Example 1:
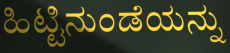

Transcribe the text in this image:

ಹಿಟ್ಟಿನುಂಡೆಯನ್ನು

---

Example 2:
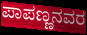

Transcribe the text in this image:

ಪಾಪಣ್ಣನವರ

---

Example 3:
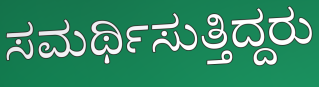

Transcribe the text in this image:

ಸಮರ್ಥಿಸುತ್ತಿದ್ದರು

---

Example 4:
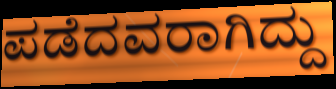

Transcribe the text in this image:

ಪಡೆದವರಾಗಿದ್ದು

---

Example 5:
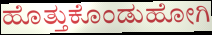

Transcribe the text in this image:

ಹೊತ್ತುಕೊಂಡುಹೋಗಿ